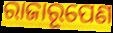
ରାଜାରୂପେଣ